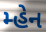
મ્હેન